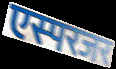
एस्परजर